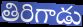
తిరిగాడు